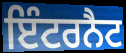
ਇੰਟਰਨੈਟ